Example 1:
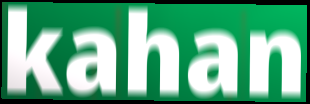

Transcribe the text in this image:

kahan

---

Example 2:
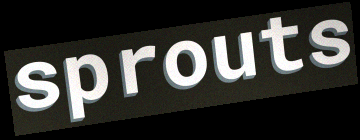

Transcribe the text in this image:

sprouts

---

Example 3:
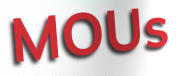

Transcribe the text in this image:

MOUs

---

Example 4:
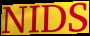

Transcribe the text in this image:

NIDS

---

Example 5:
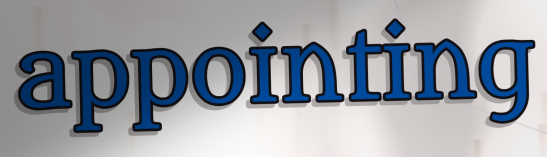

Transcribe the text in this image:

appointing